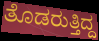
ತೊಡರುತ್ತಿದ್ದ